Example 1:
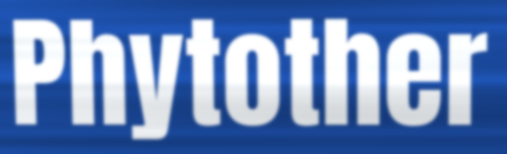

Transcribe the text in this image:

Phytother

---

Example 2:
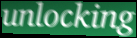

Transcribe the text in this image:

unlocking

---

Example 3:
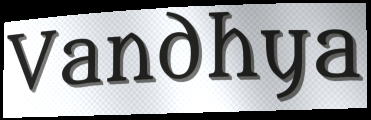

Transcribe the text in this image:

Vandhya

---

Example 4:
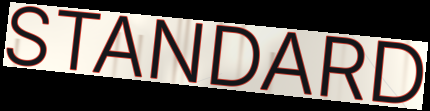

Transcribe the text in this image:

STANDARD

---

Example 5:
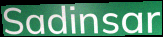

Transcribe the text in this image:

Sadinsar